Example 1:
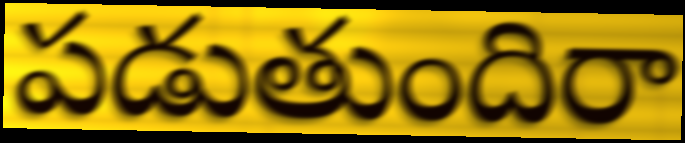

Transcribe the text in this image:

పడుతుందిరా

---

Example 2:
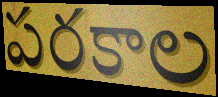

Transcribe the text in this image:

పరకాల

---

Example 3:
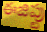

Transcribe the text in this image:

ఈజిప్టు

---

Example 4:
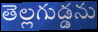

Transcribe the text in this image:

తెల్లగుడ్డను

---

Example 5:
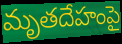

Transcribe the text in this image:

మృతదేహంపై